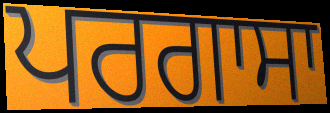
ਪਰਗਾਸਾ